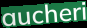
aucheri